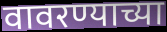
वावरण्याच्या